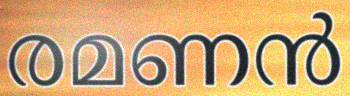
രമണൻ